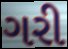
ગરી